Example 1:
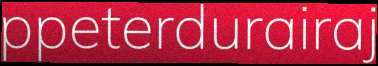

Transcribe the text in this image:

ppeterdurairaj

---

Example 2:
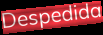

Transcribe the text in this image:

Despedida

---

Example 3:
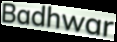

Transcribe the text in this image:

Badhwar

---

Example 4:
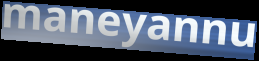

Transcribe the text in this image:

maneyannu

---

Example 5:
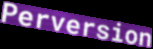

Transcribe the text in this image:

Perversion